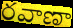
రవాణా